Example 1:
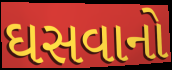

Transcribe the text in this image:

ઘસવાનો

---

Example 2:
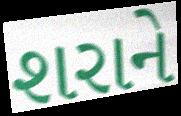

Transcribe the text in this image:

શરાને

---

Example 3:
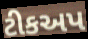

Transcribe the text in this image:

ટીકઅપ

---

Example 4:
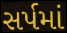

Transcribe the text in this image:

સર્પમાં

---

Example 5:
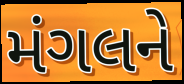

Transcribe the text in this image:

મંગલને